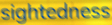
sightedness